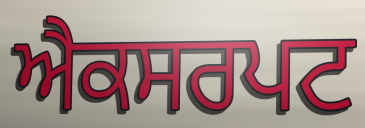
ਐਕਸਰਪਟ